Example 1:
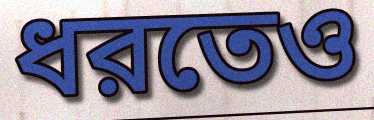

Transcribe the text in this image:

ধরতেও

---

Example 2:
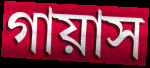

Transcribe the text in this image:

গায়াস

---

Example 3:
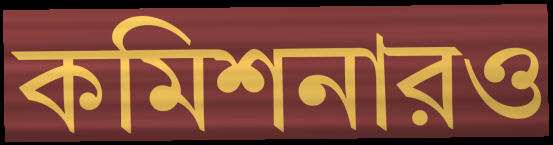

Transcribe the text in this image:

কমিশনারও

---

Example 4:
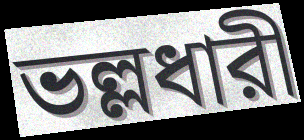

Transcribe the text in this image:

ভল্লধারী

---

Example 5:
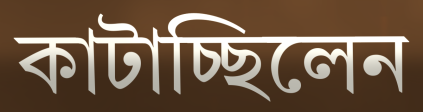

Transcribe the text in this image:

কাটাচ্ছিলেন